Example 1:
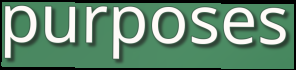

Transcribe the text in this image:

purposes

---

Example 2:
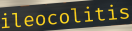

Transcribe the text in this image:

ileocolitis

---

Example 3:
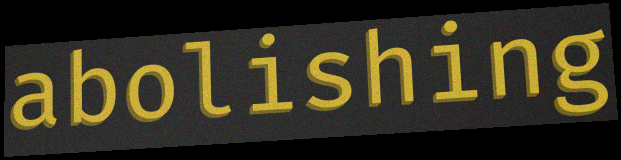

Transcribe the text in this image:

abolishing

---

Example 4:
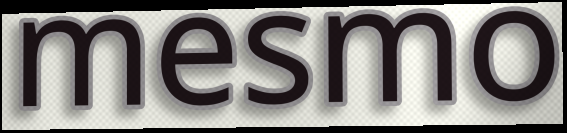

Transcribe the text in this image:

mesmo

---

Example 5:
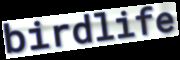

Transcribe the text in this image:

birdlife